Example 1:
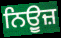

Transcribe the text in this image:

ਨਿਉੂਜ਼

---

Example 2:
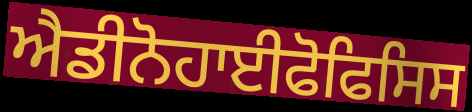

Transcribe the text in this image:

ਐਡੀਨੋਹਾਈਫੋਫਿਸਿਸ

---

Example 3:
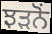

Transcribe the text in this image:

ਝੜਨੋਂ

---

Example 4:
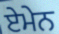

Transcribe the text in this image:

ਏਮੇਨ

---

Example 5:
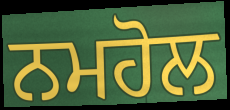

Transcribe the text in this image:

ਨਮਹੋਲ